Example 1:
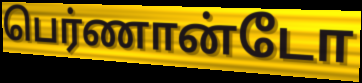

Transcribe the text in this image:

பெர்ணான்டோ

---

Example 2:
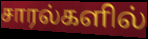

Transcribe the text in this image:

சாரல்களில்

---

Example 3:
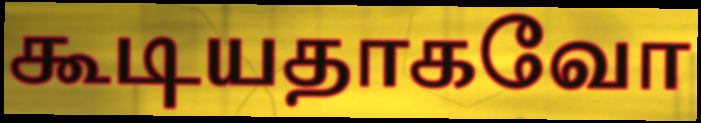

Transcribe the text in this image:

கூடியதாகவோ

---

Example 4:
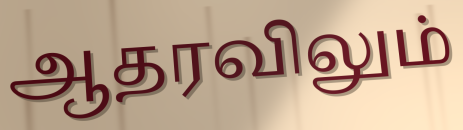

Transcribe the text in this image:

ஆதரவிலும்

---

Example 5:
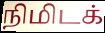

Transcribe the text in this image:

நிமிடக்